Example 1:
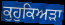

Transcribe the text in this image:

ਕੁਹੁਕਿਅੜਾ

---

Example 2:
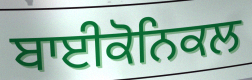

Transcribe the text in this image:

ਬਾਈਕੋਨਿਕਲ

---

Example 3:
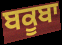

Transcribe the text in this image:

ਬਕੂਬਾ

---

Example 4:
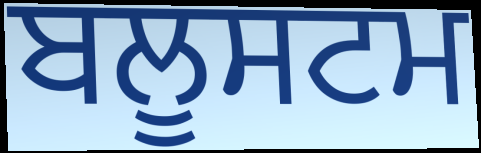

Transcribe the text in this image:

ਬਲੂਸਟਮ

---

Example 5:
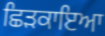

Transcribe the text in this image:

ਛਿੜਕਾਇਆ